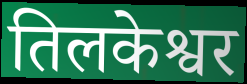
तिलकेश्वर